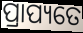
ପ୍ରାପ୍ୟତେ